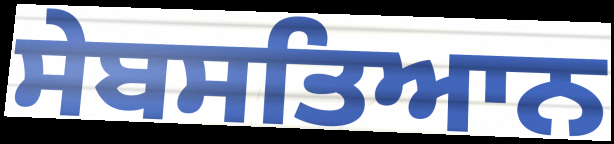
ਸੇਬਸਤਿਆਨ